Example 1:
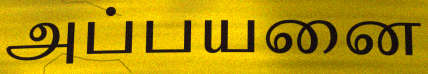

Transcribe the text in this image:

அப்பயனை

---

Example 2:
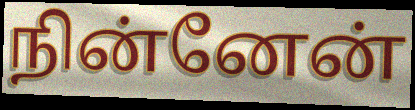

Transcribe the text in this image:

நின்னேன்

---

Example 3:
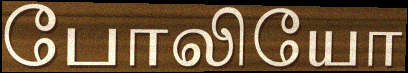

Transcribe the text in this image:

போலியோ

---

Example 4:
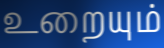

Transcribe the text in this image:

உறையும்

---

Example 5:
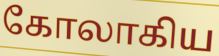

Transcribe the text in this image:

கோலாகிய